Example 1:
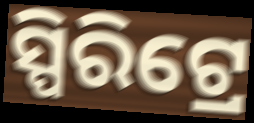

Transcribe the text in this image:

ସ୍ପିରିଟ୍ରେ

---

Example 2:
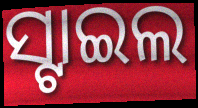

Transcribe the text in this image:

ସ୍ଟାଇଲ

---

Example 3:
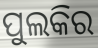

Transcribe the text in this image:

ପୁଲକିର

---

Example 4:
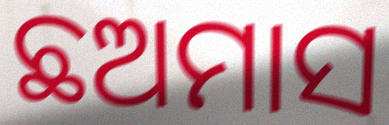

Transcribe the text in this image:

ଛଅମାସ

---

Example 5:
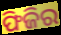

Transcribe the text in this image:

ଫିଜିର